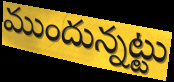
ముందున్నట్టు